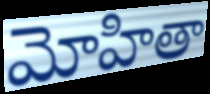
మోహితా